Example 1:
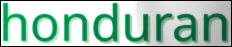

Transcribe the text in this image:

honduran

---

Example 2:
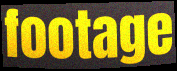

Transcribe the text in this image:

footage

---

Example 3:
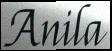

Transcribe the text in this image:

Anila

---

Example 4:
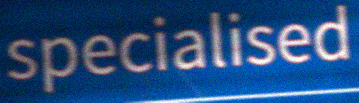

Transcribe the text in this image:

specialised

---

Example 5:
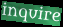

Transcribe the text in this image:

inquire